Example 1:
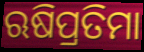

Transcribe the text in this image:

ଋଷିପ୍ରତିମା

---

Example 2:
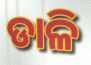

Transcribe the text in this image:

ଡାଳି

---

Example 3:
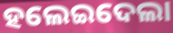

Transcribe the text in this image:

ହଲେଇଦେଲା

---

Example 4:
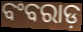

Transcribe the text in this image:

ବଂବରାଡ଼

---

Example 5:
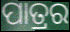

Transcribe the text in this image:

ପାତ୍ରର